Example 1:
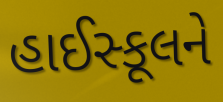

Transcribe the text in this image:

હાઈસ્કૂલને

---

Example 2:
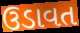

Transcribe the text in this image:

ઉડાવત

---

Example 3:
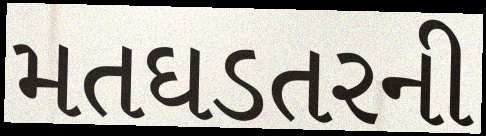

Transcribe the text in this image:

મતઘડતરની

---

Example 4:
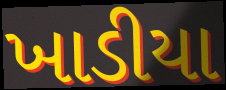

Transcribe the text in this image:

ખાડીયા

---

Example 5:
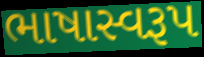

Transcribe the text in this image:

ભાષાસ્વરૂપ